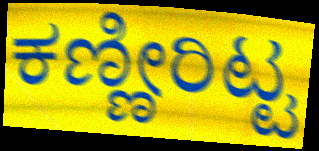
ಕಣ್ಣೀರಿಟ್ಟ